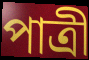
পাত্ৰী